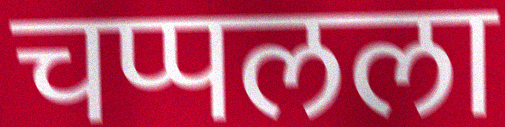
चप्पलला